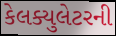
કેલક્યુલેટરની